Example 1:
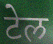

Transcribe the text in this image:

टेल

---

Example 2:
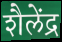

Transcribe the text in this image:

शैलेंद्र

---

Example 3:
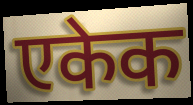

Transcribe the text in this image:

एकेक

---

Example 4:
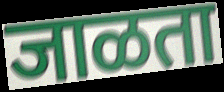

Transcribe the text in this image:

जाळता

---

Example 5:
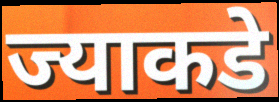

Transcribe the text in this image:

ज्याकडे